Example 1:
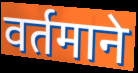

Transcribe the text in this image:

वर्तमाने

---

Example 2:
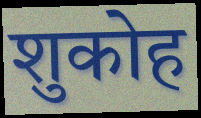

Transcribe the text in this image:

शुकोह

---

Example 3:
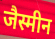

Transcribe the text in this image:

जैस्मीन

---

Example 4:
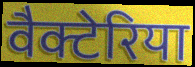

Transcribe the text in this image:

वैक्टेरिया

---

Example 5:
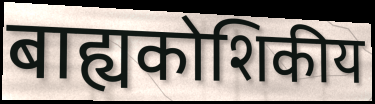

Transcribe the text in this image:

बाह्यकोशिकीय